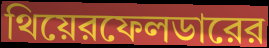
থিয়েরফেলডারের